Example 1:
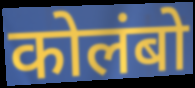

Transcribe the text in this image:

कोलंबो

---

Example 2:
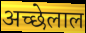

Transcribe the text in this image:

अच्छेलाल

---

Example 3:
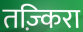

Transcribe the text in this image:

तज़्किरा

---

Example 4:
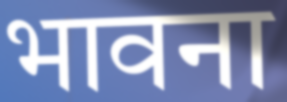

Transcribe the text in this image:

भावना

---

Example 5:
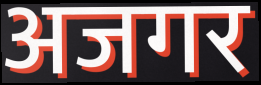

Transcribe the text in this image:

अजगर